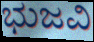
ಭುಜವಿ